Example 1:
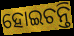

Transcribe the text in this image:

ହୋଇଚନ୍ତି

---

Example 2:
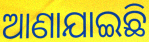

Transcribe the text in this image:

ଆଣାଯାଇଛି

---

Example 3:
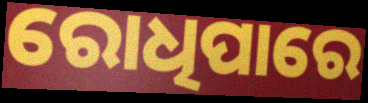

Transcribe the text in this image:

ରୋଧିପାରେ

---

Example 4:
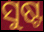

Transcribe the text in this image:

ସୁଷ୍ଟ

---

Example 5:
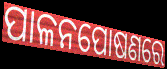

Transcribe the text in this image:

ପାଳନପୋଷଣରେ